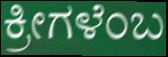
ಕ್ರೀಗಳೆಂಬ